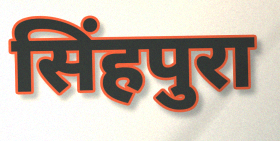
सिंहपुरा